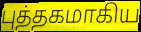
புத்தகமாகிய